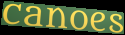
canoes